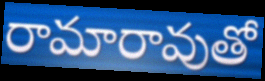
రామారావుతో